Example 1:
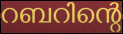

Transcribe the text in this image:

റബറിന്റെ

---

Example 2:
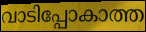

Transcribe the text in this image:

വാടിപ്പോകാത്ത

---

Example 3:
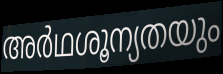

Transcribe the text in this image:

അർഥശൂന്യതയും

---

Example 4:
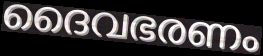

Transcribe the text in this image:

ദൈവഭരണം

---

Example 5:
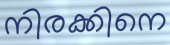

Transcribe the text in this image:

നിരക്കിനെ